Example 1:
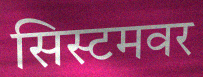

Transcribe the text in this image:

सिस्टमवर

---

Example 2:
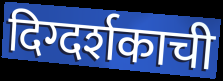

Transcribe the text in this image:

दिग्दर्शकाची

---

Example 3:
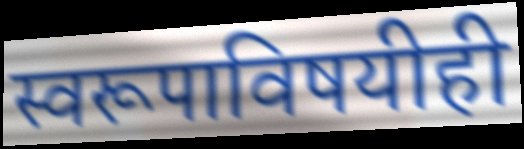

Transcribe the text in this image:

स्वरूपाविषयीही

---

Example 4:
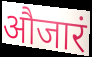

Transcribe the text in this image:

औजारं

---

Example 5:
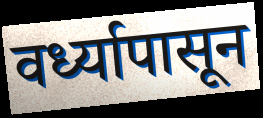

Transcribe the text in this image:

वर्ध्यापासून